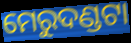
ମେରୁଦଣ୍ଡଟା